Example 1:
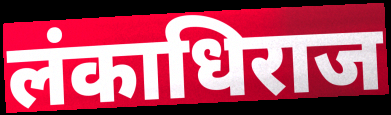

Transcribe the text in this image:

लंकाधिराज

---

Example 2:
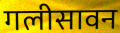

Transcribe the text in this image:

गलीसावन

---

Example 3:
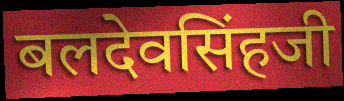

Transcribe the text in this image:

बलदेवसिंहजी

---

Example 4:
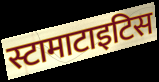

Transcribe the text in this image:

स्टामाटाइटिस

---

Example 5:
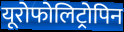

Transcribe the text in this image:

यूरोफोलिट्रोपिन